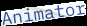
Animator